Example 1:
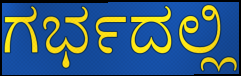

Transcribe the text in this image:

ಗರ್ಭದಲ್ಲಿ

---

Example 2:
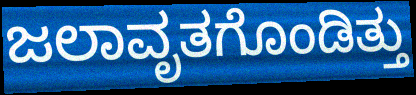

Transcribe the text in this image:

ಜಲಾವೃತಗೊಂಡಿತ್ತು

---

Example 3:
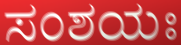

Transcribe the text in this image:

ಸಂಶಯಃ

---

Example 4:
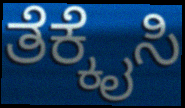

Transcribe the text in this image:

ತೆಕ್ಕೈಸಿ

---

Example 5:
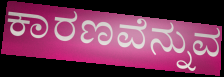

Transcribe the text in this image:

ಕಾರಣವೆನ್ನುವ